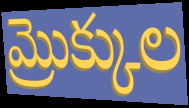
మ్రొక్కుల